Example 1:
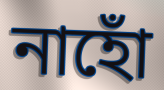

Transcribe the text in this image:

নাহোঁ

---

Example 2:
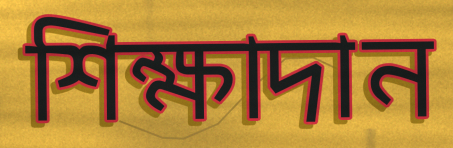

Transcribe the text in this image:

শিক্ষাদান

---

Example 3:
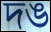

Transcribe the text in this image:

দঙ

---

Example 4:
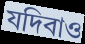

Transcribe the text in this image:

যদিবাও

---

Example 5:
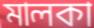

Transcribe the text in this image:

মালকা